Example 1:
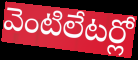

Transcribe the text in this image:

వెంటిలేటర్లో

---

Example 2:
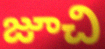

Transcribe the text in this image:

జూచి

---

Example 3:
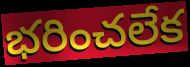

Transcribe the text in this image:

భరించలేక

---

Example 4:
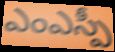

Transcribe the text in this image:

ఎంఎస్పీ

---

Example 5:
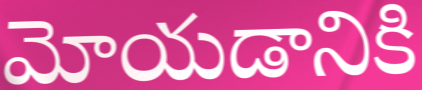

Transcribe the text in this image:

మోయడానికి